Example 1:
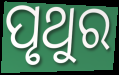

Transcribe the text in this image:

ପୃଥୁର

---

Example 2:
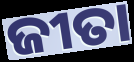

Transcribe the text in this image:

ଜୀତା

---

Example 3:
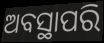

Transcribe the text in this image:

ଅବସ୍ଥାପରି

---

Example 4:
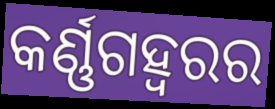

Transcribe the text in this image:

କର୍ଣ୍ଣଗହ୍ୱରର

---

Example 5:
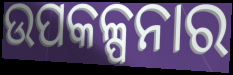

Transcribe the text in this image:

ଉପକଳ୍ପନାର